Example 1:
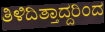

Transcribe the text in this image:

ತಿಳಿದಿತ್ತಾದ್ದರಿಂದ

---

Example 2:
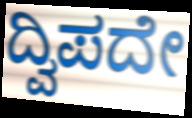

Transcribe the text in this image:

ದ್ವಿಪದೇ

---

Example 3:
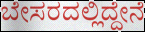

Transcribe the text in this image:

ಬೇಸರದಲ್ಲಿದ್ದೇನೆ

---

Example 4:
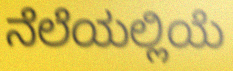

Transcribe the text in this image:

ನೆಲೆಯಲ್ಲಿಯೆ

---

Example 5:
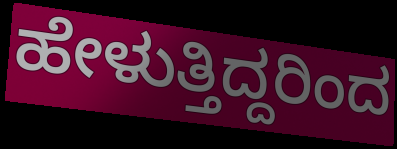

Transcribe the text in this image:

ಹೇಳುತ್ತಿದ್ದರಿಂದ